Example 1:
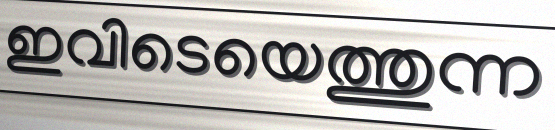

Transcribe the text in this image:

ഇവിടെയെത്തുന്ന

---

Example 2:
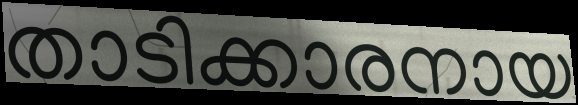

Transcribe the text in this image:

താടിക്കാരനായ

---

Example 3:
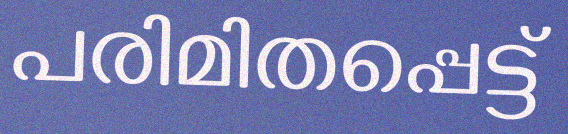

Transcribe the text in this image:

പരിമിതപ്പെട്ട്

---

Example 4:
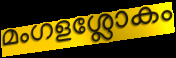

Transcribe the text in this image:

മംഗളശ്ലോകം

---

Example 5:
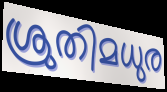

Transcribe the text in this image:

ശ്രുതിമധുര